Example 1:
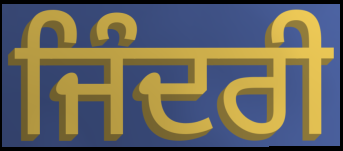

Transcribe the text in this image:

ਜਿੰਦਰੀ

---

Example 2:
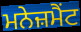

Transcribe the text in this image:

ਮਨੇਜ਼ਮੈਂਟ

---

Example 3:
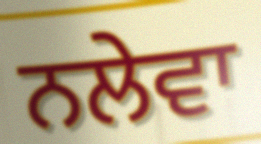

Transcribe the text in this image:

ਨਲੇਵਾ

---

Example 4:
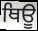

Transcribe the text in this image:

ਥਿਊ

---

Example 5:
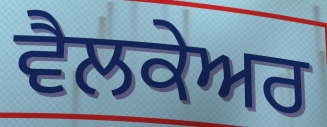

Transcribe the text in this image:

ਵੈਲਕੇਅਰ